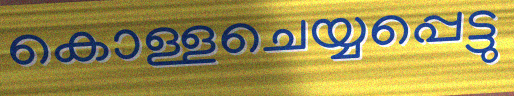
കൊള്ളചെയ്യപ്പെട്ടു